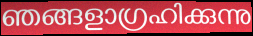
ഞങ്ങളാഗ്രഹിക്കുന്നു